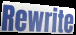
Rewrite